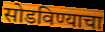
सोडविण्याचा